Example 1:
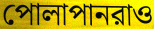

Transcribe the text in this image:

পোলাপানরাও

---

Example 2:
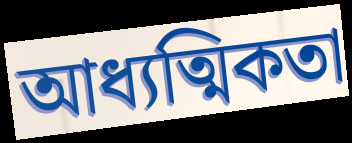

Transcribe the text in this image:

আধ্যত্মিকতা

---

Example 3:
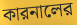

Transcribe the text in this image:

কারনালের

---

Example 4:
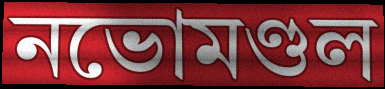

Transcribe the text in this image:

নভোমণ্ডল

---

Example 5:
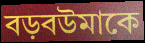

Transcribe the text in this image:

বড়বউমাকে